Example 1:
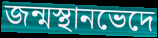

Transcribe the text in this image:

জন্মস্থানভেদে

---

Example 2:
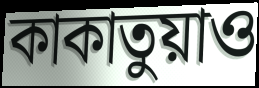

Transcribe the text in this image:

কাকাতুয়াও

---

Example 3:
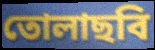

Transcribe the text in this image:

তোলাছবি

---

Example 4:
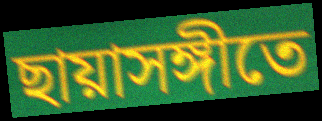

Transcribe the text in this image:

ছায়াসঙ্গীতে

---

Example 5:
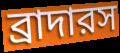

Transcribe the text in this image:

ব্রাদারস